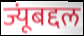
ज्यूंबद्दल